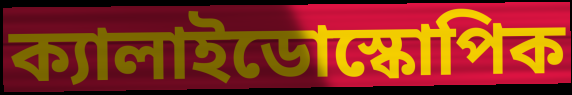
ক্যালাইডোস্কোপিক